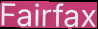
Fairfax